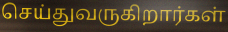
செய்துவருகிறார்கள்